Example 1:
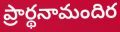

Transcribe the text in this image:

ప్రార్థనామందిర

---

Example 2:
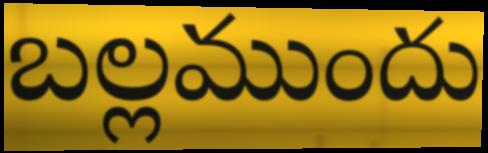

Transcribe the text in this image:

బల్లముందు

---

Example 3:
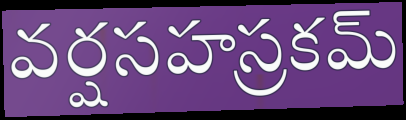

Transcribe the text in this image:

వర్షసహస్రకమ్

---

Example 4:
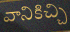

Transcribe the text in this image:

వానికిచ్చి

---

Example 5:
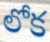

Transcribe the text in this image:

లోక